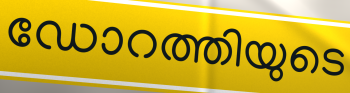
ഡോറത്തിയുടെ